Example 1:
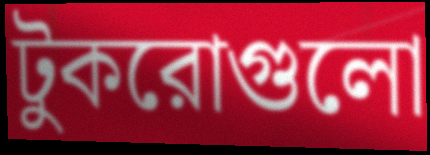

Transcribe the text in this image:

টুকরোগুলো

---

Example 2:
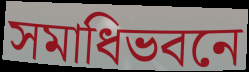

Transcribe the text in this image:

সমাধিভবনে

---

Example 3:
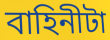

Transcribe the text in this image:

বাহিনীটা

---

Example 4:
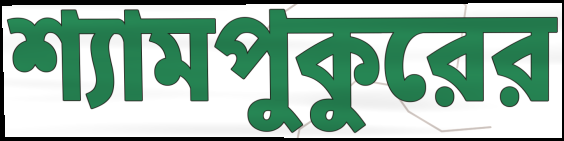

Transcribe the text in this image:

শ্যামপুকুরের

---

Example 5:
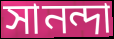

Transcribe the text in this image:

সানন্দা